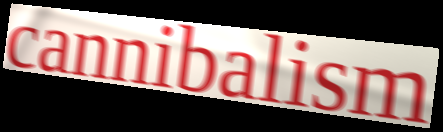
cannibalism